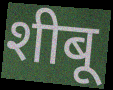
शीबू